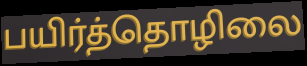
பயிர்த்தொழிலை